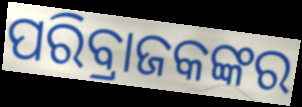
ପରିବ୍ରାଜକଙ୍କର